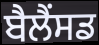
ਬੈਲੈਂਸਡ